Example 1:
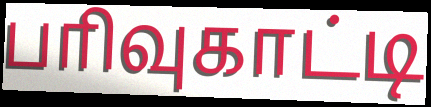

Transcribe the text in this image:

பரிவுகாட்டி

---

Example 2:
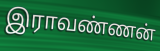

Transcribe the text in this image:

இராவண்ணன்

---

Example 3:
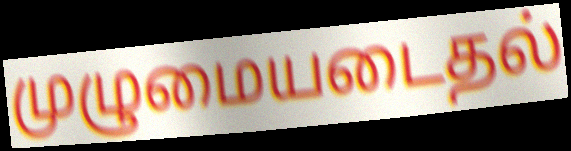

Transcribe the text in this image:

முழுமையடைதல்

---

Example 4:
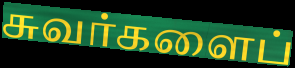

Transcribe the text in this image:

சுவர்களைப்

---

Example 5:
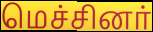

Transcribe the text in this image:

மெச்சினர்